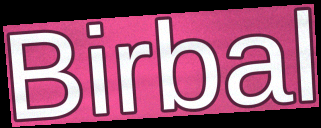
Birbal